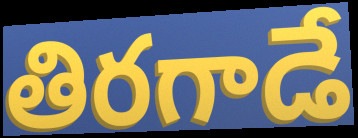
తిరగాడే